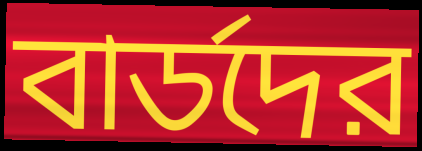
বার্ডদের